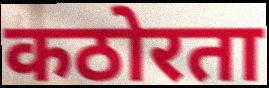
कठोरता